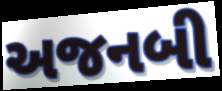
અજનબી